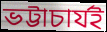
ভট্টাচাৰ্যই